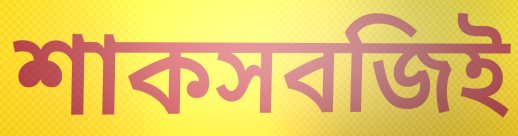
শাকসবজিই